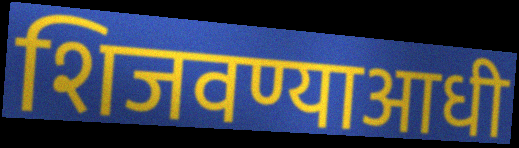
शिजवण्याआधी